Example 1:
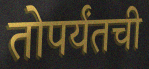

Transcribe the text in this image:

तोपर्यंतची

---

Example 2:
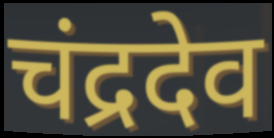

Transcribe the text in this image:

चंद्रदेव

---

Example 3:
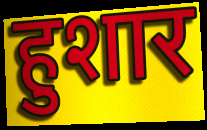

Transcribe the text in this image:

हुशार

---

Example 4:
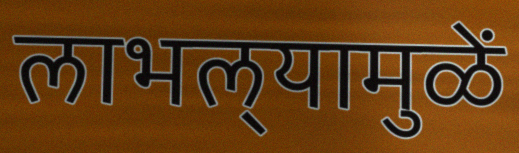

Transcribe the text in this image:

लाभल्यामुळें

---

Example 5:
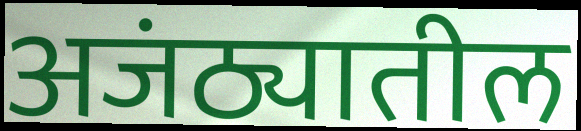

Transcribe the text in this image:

अजंठ्यातील